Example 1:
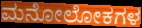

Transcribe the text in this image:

ಮನೋಲೋಕಗಳ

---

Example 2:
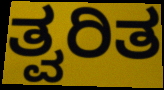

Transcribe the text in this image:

ತ್ವರಿತ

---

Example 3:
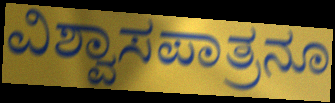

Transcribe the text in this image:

ವಿಶ್ವಾಸಪಾತ್ರನೂ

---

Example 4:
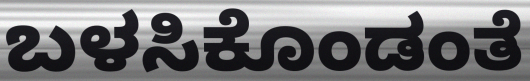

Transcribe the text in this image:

ಬಳಸಿಕೊಂಡಂತೆ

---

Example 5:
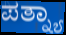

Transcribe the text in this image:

ಪತ್ನ್ಯಾ